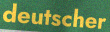
deutscher